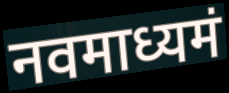
नवमाध्यमं